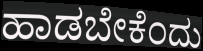
ಹಾಡಬೇಕೆಂದು